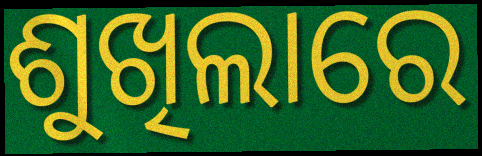
ଶୁଖିଲାରେ